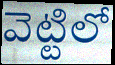
వెట్టిలో